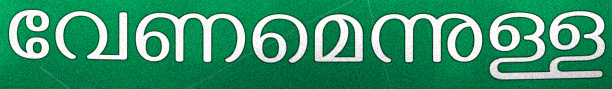
വേണമെന്നുള്ള